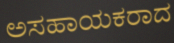
ಅಸಹಾಯಕರಾದ